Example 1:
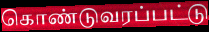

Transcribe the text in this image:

கொண்டுவரப்பட்டு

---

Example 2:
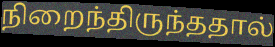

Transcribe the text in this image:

நிறைந்திருந்ததால்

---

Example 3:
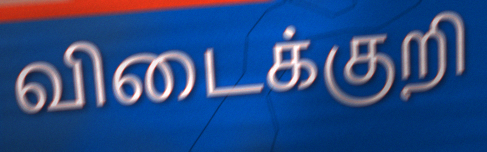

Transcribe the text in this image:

விடைக்குறி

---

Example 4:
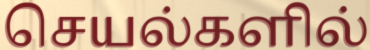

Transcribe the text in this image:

செயல்களில்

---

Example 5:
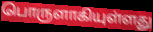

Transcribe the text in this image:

பொருளாகியுள்ளது